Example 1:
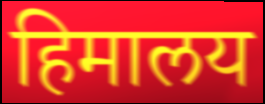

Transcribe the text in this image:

हिमालय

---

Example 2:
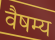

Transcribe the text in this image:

वैषम्य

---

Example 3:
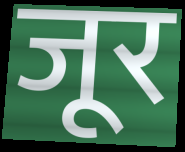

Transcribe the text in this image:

जूर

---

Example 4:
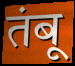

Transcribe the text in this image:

तंबू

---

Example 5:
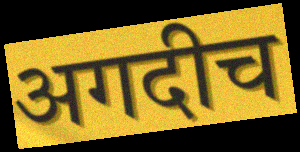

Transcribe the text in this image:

अगदीच